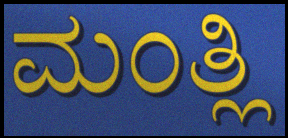
ಮಂತ್ಲಿ